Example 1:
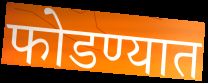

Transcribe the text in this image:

फोडण्यात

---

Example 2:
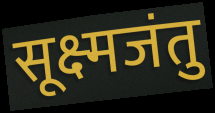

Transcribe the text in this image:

सूक्ष्मजंतु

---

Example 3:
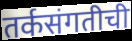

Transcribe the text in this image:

तर्कसंगतीची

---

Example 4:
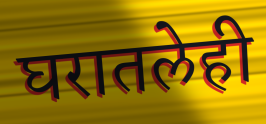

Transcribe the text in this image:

घरातलेही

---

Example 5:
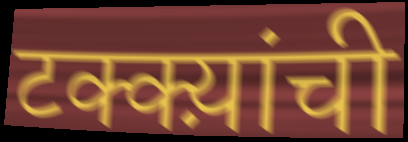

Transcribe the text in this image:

टक्क्य़ांची